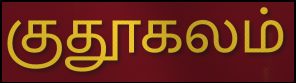
குதூகலம்